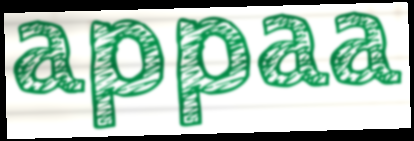
appaa